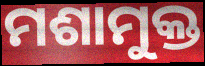
ମଶାମୁକ୍ତ